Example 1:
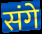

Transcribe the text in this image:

संगे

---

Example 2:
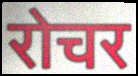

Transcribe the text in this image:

रोचर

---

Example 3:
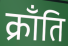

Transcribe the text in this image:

क्राँति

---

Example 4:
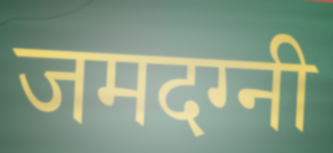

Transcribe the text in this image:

जमदग्नी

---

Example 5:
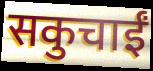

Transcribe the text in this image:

सकुचाईं